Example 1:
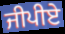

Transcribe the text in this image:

ਜੀਪੀਏ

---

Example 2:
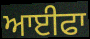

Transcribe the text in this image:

ਆਈਫਾ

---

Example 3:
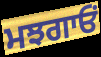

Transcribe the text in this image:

ਮਝਗਾਓਂ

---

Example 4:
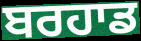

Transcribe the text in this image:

ਬਰਹਾਡ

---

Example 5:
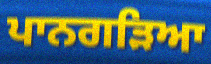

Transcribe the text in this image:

ਪਾਨਗੜਿਆ